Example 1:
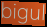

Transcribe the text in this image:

bigul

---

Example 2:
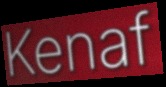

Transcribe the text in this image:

Kenaf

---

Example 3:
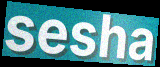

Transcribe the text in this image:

sesha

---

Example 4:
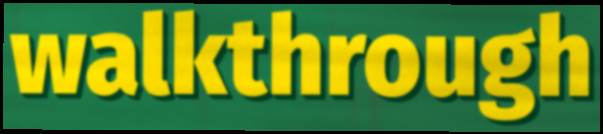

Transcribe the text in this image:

walkthrough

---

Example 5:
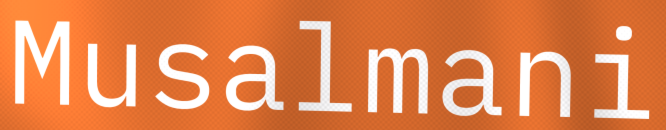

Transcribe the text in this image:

Musalmani